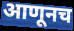
आणूनच